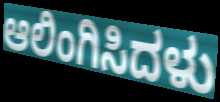
ಆಲಿಂಗಿಸಿದಳು